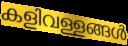
കളിവള്ളങ്ങൾ